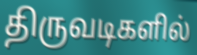
திருவடிகளில்